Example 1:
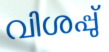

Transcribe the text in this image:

വിശപ്പു്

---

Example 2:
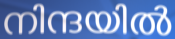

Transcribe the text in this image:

നിന്ദയിൽ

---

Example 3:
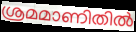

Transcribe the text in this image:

ശ്രമമാണിതിൽ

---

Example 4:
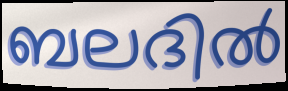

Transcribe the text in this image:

ബലദിൽ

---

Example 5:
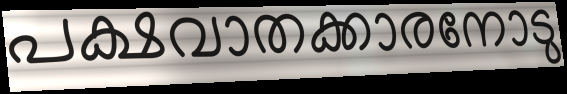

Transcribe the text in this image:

പക്ഷവാതക്കാരനോടു